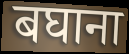
बघाना